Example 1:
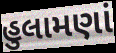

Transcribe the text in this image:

હુલામણાં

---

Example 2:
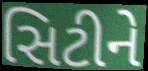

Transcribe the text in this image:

સિટીને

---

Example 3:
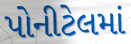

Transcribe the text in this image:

પોનીટેલમાં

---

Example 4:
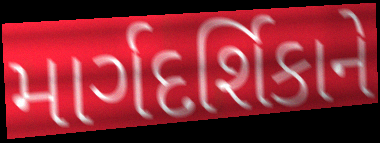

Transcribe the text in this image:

માર્ગદર્શિકાને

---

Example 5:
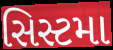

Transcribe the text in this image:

સિસ્ટમા